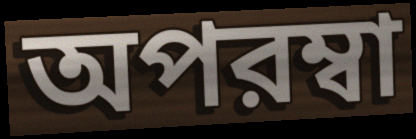
অপরম্বা